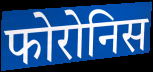
फोरोनिस